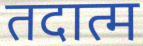
तदात्म